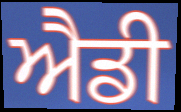
ਐਡੀ